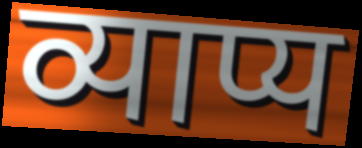
व्याप्य